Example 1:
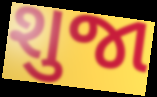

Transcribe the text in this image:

શુજા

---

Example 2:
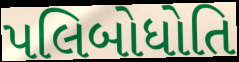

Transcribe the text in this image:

પલિબોધોતિ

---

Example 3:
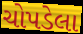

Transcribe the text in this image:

ચોપડેલા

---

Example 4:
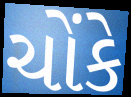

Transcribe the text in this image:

ચોંકે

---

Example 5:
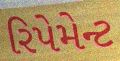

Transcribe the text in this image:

રિપેમેન્ટ